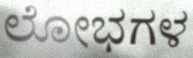
ಲೋಭಗಳ